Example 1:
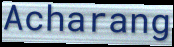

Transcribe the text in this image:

Acharang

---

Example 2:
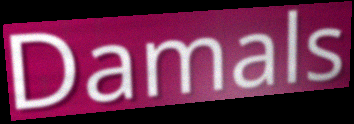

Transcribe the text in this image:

Damals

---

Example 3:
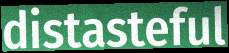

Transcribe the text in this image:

distasteful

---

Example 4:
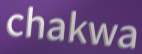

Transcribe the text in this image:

chakwa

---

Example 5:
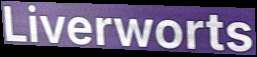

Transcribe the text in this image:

Liverworts